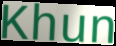
Khun